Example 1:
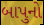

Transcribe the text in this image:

બાપુનો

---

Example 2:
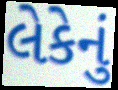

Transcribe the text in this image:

લેકેનું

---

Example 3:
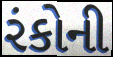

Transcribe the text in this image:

રંકોની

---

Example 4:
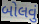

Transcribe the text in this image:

બોલવું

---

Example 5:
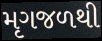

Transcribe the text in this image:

મૃગજળથી